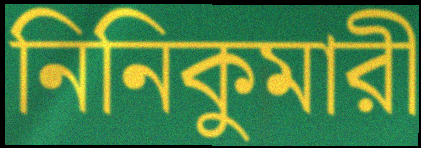
নিনিকুমারী